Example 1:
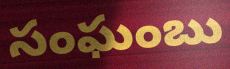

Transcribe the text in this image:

సంఘంబు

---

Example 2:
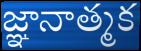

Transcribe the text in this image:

జ్ఞానాత్మక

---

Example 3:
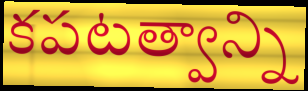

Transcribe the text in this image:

కపటత్వాన్ని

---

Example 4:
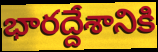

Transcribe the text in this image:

భారద్దేశానికి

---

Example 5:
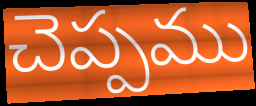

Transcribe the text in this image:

చెప్పము